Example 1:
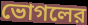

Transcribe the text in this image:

ভোগলের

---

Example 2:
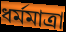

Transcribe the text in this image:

ধর্মমাত্রা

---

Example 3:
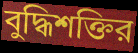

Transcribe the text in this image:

বুদ্ধিশক্তির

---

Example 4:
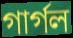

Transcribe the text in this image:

গার্গল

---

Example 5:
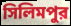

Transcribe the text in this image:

সিলিমপুর